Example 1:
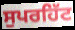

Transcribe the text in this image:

ਸੁਪਰਹਿੱਟ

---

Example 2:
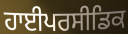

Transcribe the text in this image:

ਹਾਈਪਰਸੀਡਿਕ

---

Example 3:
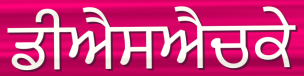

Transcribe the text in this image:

ਡੀਐਸਐਚਕੇ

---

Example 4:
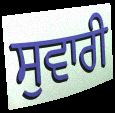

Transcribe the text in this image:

ਸੁਵਾਰੀ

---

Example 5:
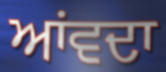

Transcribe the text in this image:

ਆਂਵਦਾ